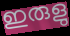
ഇരുളു